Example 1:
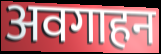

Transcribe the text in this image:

अवगाहन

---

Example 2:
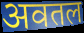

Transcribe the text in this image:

अवतल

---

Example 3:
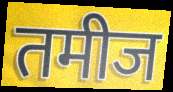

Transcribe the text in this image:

तमीज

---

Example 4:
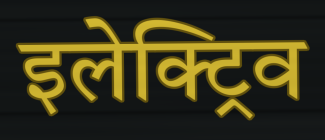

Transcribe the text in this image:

इलेक्ट्रिव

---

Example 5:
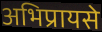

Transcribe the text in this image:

अभिप्रायसे